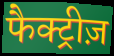
फैक्ट्रीज़